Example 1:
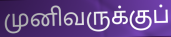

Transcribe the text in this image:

முனிவருக்குப்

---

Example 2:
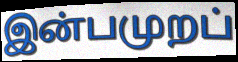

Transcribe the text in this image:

இன்பமுறப்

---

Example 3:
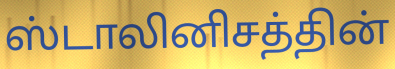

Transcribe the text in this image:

ஸ்டாலினிசத்தின்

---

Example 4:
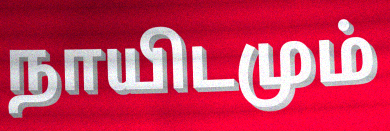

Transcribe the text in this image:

நாயிடமும்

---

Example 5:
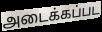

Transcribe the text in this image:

அடைக்கப்பட